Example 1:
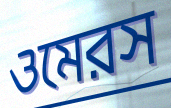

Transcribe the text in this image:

ওমেরস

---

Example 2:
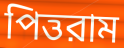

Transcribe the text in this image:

পিত্তরাম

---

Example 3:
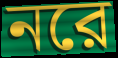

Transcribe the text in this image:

নরে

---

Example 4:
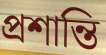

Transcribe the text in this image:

প্রশান্তি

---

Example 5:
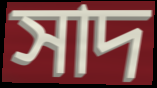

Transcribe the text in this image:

সাদ